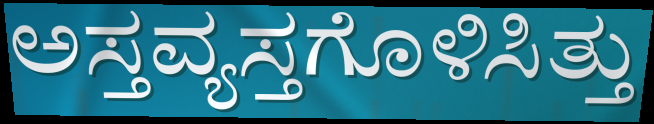
ಅಸ್ತವ್ಯಸ್ತಗೊಳಿಸಿತ್ತು